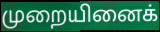
முறையினைக்